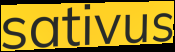
sativus